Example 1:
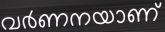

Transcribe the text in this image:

വർണനയാണ്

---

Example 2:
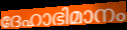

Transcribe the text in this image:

ദേഹാഭിമാനം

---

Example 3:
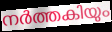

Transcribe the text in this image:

നർത്തകിയും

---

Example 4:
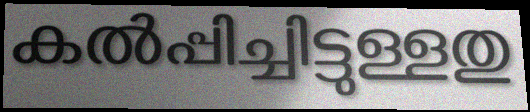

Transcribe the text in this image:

കൽപ്പിച്ചിട്ടുള്ളതു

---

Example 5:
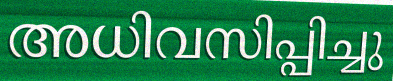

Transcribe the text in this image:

അധിവസിപ്പിച്ചു